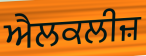
ਐਲਕਲੀਜ਼